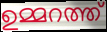
ഉമ്മറത്ത്